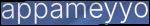
appameyyo